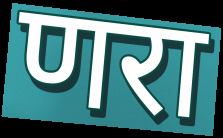
णरा